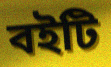
বইটি